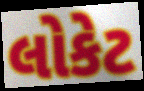
લોકેટ